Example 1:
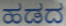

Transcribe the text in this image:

ಹಡದ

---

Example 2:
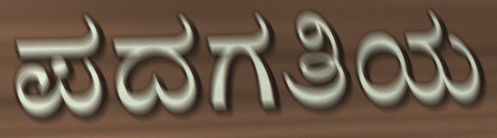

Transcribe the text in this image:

ಪದಗತಿಯ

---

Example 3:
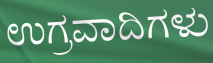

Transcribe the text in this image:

ಉಗ್ರವಾದಿಗಳು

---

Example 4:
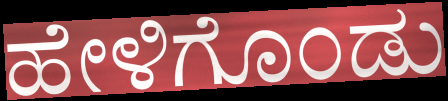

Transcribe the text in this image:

ಹೇಳಿಗೊಂಡು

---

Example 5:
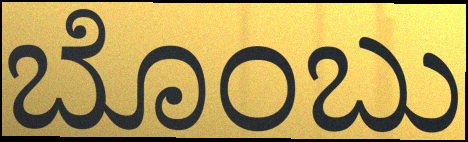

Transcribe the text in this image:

ಬೊಂಬು